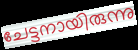
ചേട്ടനായിരുന്നു